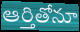
ఆర్తితోనూ